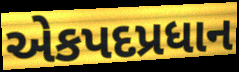
એકપદપ્રધાન